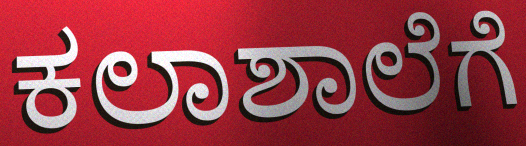
ಕಲಾಶಾಲೆಗೆ